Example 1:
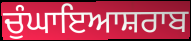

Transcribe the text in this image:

ਚੁੰਘਾਇਆਸ਼ਰਾਬ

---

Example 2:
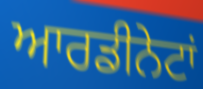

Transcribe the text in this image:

ਆਰਡੀਨੇਟਾਂ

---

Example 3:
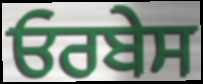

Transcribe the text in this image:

ਓਰਬੇਸ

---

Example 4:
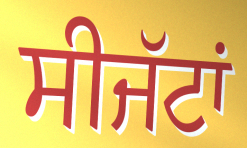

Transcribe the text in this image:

ਸੀਜੱਟਾਂ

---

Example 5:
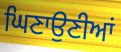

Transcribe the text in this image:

ਘਿਣਾਉਣੀਆਂ